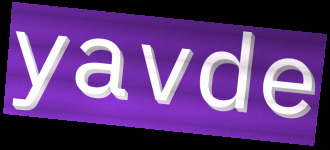
yavde